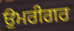
ਉਮਰੀਗਰ